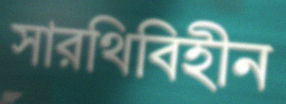
সারথিবিহীন